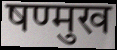
षण्मुख